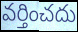
వర్తించదు